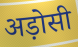
अड़ोसी